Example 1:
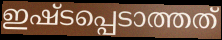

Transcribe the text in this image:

ഇഷ്ടപ്പെടാത്തത്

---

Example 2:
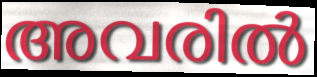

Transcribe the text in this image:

അവരിൽ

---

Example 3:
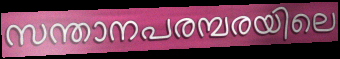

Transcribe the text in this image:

സന്താനപരമ്പരയിലെ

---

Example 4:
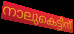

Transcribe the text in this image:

നാലുകെട്ടിന്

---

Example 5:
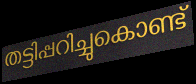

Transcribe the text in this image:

തട്ടിപ്പറിച്ചുകൊണ്ട്